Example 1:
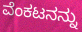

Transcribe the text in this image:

ವೆಂಕಟನನ್ನು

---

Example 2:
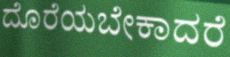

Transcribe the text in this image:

ದೊರೆಯಬೇಕಾದರೆ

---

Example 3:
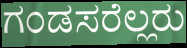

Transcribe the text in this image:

ಗಂಡಸರೆಲ್ಲರು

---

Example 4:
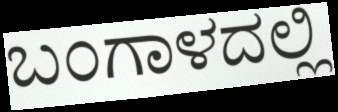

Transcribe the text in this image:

ಬಂಗಾಳದಲ್ಲಿ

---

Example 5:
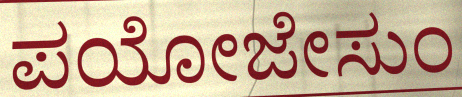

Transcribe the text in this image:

ಪಯೋಜೇಸುಂ